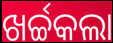
ଖର୍ଚ୍ଚକଲା